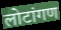
लोटांगण